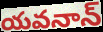
యవనాన్